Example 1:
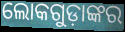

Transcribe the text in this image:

ଲୋକଗୁଡ଼ାଙ୍କର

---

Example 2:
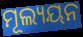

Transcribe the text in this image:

ମୂଲ୍ୟୟନ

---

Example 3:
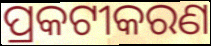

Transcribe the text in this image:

ପ୍ରକଟୀକରଣ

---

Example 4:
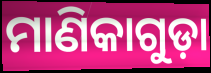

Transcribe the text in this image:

ମାଣିକାଗୁଡ଼ା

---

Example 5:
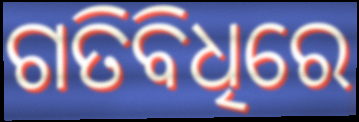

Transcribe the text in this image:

ଗତିବିଧିରେ